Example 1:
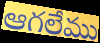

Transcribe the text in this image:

ఆగలేము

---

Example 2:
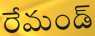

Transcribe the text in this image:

రేమండ్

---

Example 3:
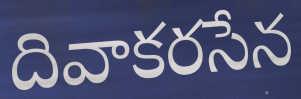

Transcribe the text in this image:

దివాకరసేన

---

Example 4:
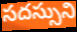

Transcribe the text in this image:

సదస్సుని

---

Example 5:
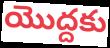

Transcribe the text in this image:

యొద్దకు